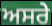
ਅਸਰੇ